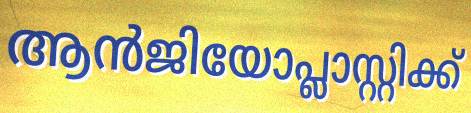
ആൻജിയോപ്ലാസ്റ്റിക്ക്